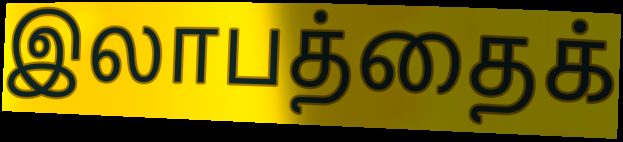
இலாபத்தைக்